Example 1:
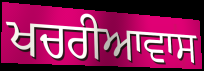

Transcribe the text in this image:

ਖਚਰੀਆਵਾਸ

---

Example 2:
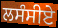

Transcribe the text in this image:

ਲਸੰਸੀਏ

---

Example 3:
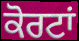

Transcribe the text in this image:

ਕੋਰਟਾਂ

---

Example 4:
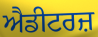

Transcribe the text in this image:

ਐਡੀਟਰਜ਼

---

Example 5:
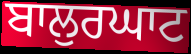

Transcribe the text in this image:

ਬਾਲੁਰਘਾਟ